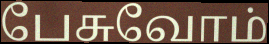
பேசுவோம்